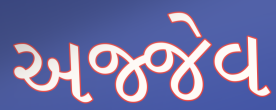
અજ્જેવ